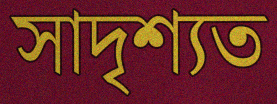
সাদৃশ্যত